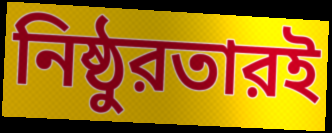
নিষ্ঠুরতারই